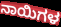
ನಾಯಿಗಳ